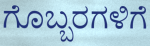
ಗೊಬ್ಬರಗಳಿಗೆ